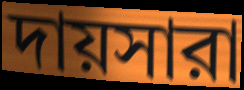
দায়সারা